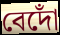
বেদোঁ